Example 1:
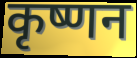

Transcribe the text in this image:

कृष्णन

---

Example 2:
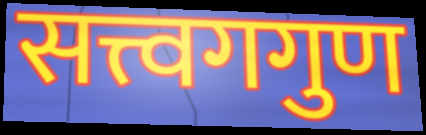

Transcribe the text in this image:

सत्त्वगगुण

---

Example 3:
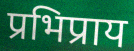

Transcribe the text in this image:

प्रभिप्राय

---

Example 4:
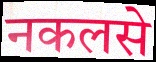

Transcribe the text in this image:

नकलसे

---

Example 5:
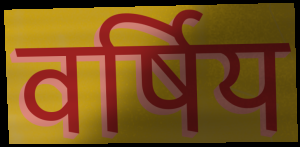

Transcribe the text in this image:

वर्षिय